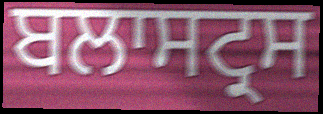
ਬਲਾਸਟ੍ਰਸ